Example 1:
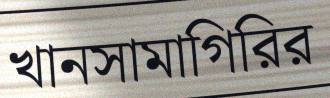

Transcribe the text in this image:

খানসামাগিরির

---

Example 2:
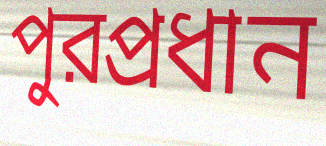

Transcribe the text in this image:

পুরপ্রধান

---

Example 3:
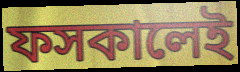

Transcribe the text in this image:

ফসকালেই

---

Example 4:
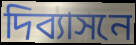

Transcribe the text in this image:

দিব্যাসনে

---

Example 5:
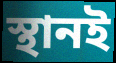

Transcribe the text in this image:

স্থানই